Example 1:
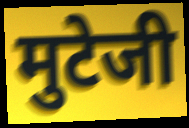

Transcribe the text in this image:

मुटेजी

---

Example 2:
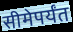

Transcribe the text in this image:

सीमेपर्यंत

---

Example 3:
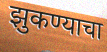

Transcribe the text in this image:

झुकण्याचा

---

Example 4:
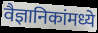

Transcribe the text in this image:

वैज्ञानिकांमध्ये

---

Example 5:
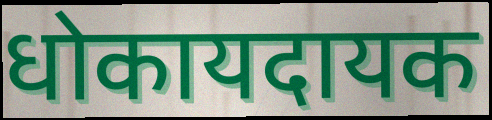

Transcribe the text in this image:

धोकायदायक